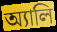
অ্যালি